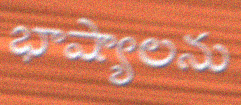
భాష్యాలను